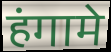
हंगामे